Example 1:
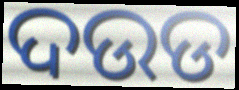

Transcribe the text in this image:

ଦଉଡ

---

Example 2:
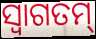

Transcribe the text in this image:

ସ୍ୱାଗତମ୍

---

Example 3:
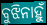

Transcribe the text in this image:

ବୁଝିନାହୁଁ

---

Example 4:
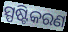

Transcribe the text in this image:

ସ୍ପଷ୍ଟିକରଣ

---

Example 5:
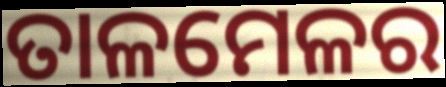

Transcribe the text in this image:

ତାଳମେଳର